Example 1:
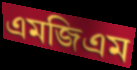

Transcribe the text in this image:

এমজিএম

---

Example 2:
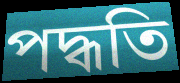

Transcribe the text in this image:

পদ্ধতি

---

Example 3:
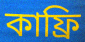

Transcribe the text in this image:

কাফ্রি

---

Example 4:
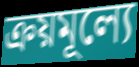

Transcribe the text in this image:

ক্রয়মূল্যে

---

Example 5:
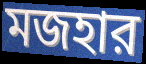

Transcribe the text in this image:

মজহার